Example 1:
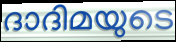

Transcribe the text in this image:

ദാദിമയുടെ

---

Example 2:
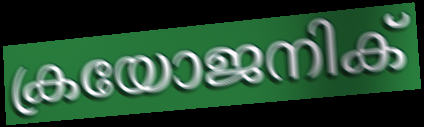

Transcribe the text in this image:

ക്രയോജനിക്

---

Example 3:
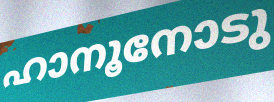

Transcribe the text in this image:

ഹാനൂനോടു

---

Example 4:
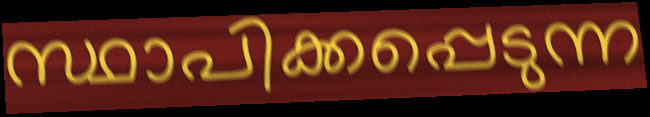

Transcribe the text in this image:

സ്ഥാപിക്കപ്പെടുന്ന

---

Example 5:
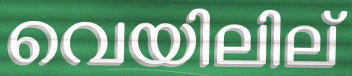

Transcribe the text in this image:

വെയിലില്